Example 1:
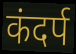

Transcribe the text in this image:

कंदर्प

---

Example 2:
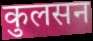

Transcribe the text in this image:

कुलसन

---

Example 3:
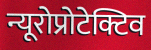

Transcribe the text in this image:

न्यूरोप्रोटेक्टिव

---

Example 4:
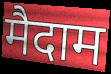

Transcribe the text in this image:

मैदाम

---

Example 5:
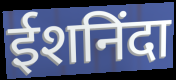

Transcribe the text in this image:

ईशनिंदा